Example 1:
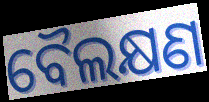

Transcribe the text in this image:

ବୈଲକ୍ଷଣ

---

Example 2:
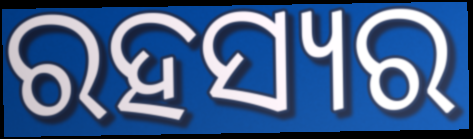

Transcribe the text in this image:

ରହସ୍ୟର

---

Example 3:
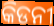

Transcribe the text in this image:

କିଡନୀ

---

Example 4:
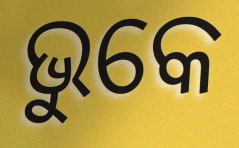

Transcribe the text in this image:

ଭୁକେ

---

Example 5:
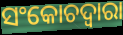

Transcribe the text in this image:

ସଂକୋଚଦ୍ୱାରା